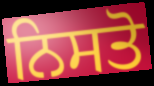
ਨਿਸਤੋ